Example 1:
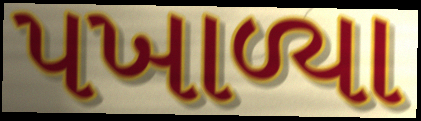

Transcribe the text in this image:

પખાળ્યા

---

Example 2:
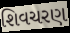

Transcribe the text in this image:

શિવચરણ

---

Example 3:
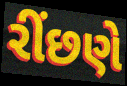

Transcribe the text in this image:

રીંછણે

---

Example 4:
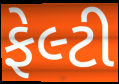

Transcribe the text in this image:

ફેલ્ટી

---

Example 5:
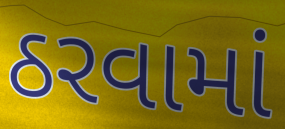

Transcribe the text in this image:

ઠરવામાં